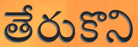
తేరుకొని